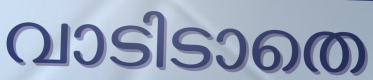
വാടിടാതെ